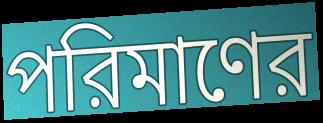
পরিমাণের